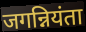
जगन्नियंता